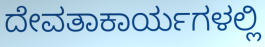
ದೇವತಾಕಾರ್ಯಗಳಲ್ಲಿ